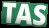
TAS